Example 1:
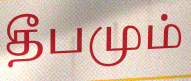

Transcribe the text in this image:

தீபமும்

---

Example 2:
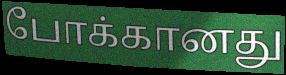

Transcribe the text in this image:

போக்கானது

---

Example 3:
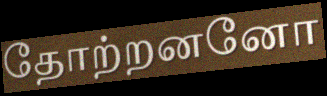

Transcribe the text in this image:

தோற்றனனோ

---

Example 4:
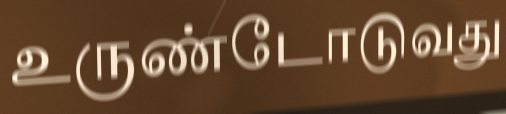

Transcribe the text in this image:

உருண்டோடுவது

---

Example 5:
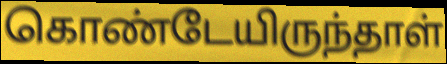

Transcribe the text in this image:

கொண்டேயிருந்தாள்